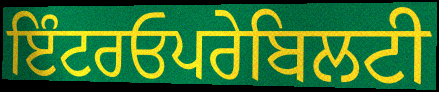
ਇੰਟਰਓਪਰੇਬਿਲਟੀ